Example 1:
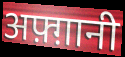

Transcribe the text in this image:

अफ़्ग़ानी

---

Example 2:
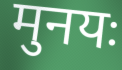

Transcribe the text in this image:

मुनयः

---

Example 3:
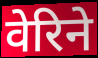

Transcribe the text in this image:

वेरिने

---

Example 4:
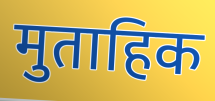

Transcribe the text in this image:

मुताहिक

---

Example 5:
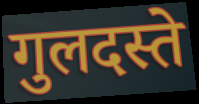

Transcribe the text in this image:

गुलदस्ते